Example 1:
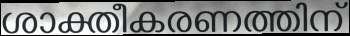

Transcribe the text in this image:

ശാക്തീകരണത്തിന്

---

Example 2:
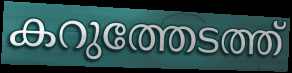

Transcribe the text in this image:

കറുത്തേടത്ത്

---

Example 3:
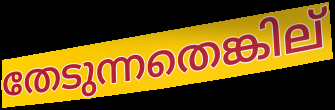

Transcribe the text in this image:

തേടുന്നതെങ്കില്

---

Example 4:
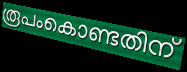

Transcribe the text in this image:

രൂപംകൊണ്ടതിന്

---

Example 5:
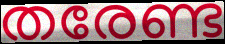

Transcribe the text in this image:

തരേണ്ട